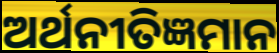
ଅର୍ଥନୀତିଜ୍ଞମାନ